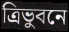
ত্রিভুবনে